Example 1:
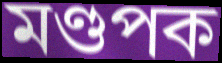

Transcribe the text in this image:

মণ্ডপক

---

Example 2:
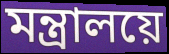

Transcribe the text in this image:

মন্ত্ৰালয়ে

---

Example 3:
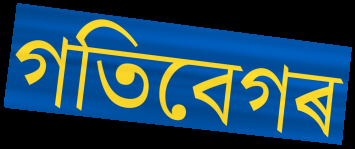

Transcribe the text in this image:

গতিবেগৰ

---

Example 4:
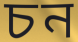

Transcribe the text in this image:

চন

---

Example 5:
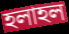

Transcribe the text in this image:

হলাহল